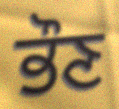
ਭੌਣ